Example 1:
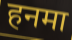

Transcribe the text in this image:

हनमा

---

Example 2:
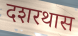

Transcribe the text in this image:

दशरथास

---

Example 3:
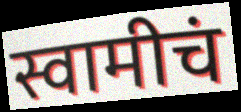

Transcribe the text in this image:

स्वामीचं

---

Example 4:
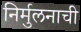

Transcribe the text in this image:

निर्मुलनाची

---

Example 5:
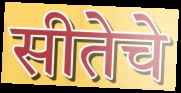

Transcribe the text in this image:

सीतेचे